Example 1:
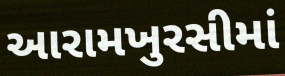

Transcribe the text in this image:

આરામખુરસીમાં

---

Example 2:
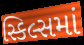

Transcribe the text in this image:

સ્કિલ્સમાં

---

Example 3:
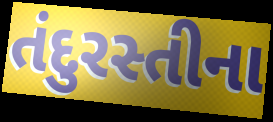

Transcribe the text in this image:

તંદુરસ્તીના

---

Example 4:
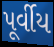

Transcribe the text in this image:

પૂર્વીય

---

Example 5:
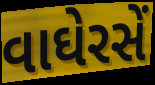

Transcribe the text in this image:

વાઘેરસેં